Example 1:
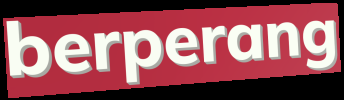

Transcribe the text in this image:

berperang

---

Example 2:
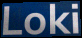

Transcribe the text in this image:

Loki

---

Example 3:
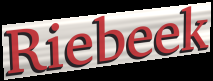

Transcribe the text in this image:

Riebeek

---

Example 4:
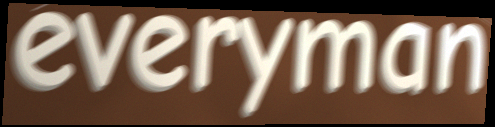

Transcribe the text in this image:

everyman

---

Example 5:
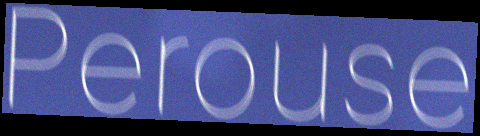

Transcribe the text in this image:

Perouse